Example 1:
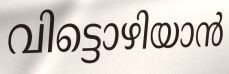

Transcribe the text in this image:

വിട്ടൊഴിയാൻ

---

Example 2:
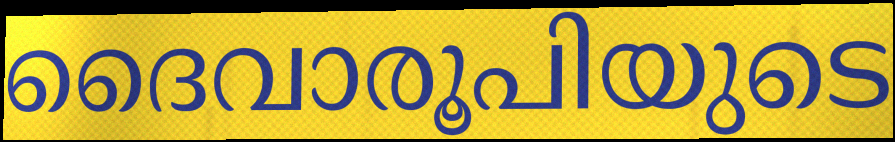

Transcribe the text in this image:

ദൈവാരൂപിയുടെ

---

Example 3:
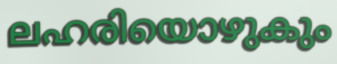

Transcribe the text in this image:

ലഹരിയൊഴുകും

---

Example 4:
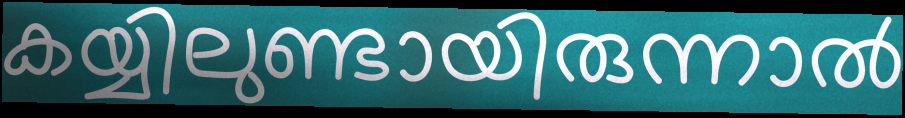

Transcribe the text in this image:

കയ്യിലുണ്ടായിരുന്നാൽ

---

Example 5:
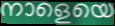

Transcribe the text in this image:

നാളെയെ